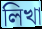
লিখা